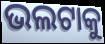
ଭଲଟାକୁ